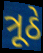
ત્રૂઠે